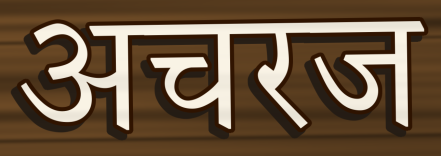
अचरज